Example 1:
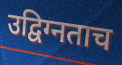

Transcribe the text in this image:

उद्विग्नताच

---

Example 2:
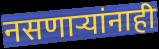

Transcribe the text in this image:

नसणार्‍यांनाही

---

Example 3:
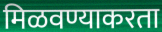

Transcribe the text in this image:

मिळवण्याकरता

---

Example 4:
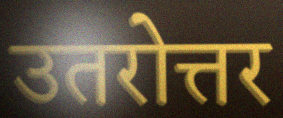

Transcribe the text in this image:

उतरोत्तर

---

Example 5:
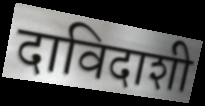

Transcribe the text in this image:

दाविदाशी